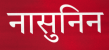
नासुनिन